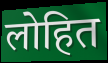
लोहित